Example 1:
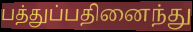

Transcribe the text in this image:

பத்துப்பதினைந்து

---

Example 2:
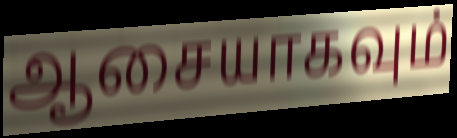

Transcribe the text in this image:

ஆசையாகவும்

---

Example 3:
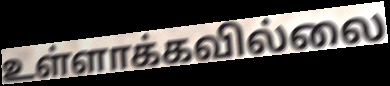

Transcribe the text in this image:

உள்ளாக்கவில்லை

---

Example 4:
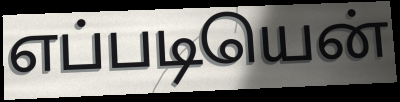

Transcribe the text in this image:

எப்படியென்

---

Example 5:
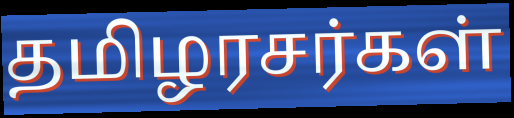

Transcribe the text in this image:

தமிழரசர்கள்